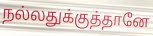
நல்லதுக்குத்தானே